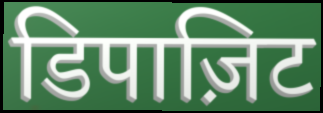
डिपाज़िट